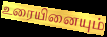
உரையினையும்